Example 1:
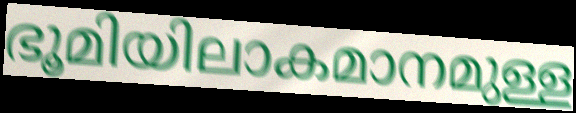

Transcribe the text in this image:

ഭൂമിയിലാകമാനമുള്ള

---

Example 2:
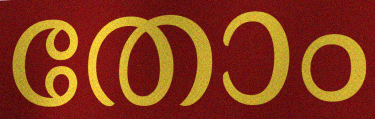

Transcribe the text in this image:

തോം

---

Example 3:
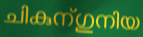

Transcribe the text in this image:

ചികുന്ഗുനിയ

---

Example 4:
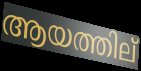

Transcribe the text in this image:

ആയത്തില്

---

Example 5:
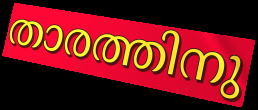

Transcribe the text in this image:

താരത്തിനു